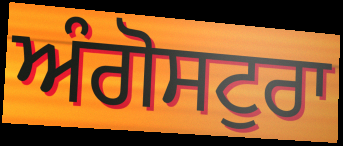
ਅੰਗੋਸਟੁਰਾ